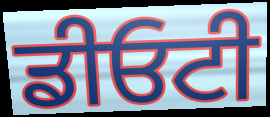
ਡੀਓਟੀ